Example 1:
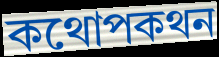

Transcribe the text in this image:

কথোপকথন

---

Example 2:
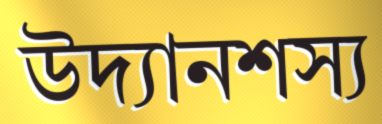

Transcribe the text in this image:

উদ্যানশস্য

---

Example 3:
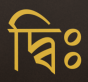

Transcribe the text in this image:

দ্বিঃ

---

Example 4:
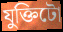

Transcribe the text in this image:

যুক্তিটো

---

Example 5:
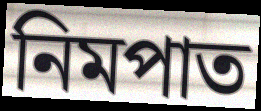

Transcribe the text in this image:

নিমপাত